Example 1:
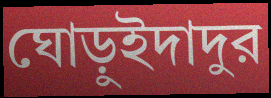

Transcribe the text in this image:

ঘোড়ুইদাদুর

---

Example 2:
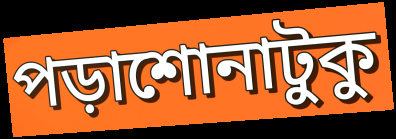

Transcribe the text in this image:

পড়াশোনাটুকু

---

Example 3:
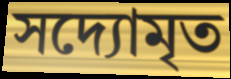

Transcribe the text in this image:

সদ্যোমৃত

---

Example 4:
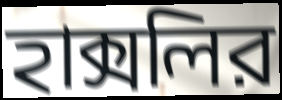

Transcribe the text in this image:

হাক্সলির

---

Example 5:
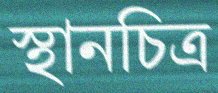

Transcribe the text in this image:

স্থানচিত্র